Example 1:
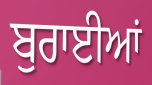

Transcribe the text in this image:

ਬੁਰਾਈਆਂ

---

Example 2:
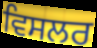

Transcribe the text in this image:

ਵਿਸਲਰ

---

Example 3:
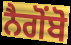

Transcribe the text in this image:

ਨੈਗੋਂਬੋ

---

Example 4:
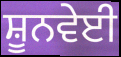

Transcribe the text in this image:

ਸ਼ੂਨਵੇਈ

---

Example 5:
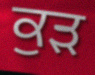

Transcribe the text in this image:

ਕੁੜ